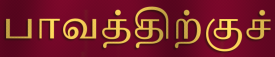
பாவத்திற்குச்